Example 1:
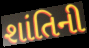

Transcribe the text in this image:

શાંતિની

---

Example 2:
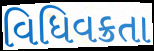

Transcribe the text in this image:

વિધિવક્રતા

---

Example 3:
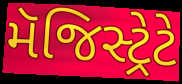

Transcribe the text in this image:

મૅજિસ્ટ્રેટે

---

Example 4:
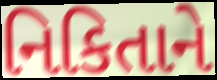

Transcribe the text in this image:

નિકિતાને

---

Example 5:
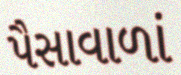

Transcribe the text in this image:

પૈસાવાળાં